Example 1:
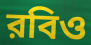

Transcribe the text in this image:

রবিও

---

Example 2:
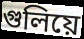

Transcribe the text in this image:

গুলিয়ে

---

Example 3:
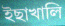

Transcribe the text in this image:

ইছাখালি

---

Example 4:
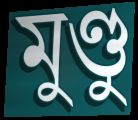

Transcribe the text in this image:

মুণ্ডু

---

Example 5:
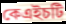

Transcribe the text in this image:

কেএইচটি